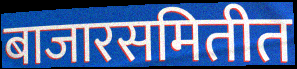
बाजारसमितीत